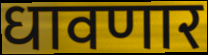
धावणार